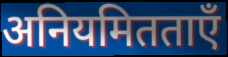
अनियमितताएँ